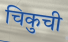
चिकुची